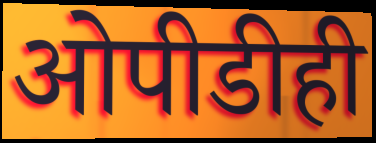
ओपीडीही